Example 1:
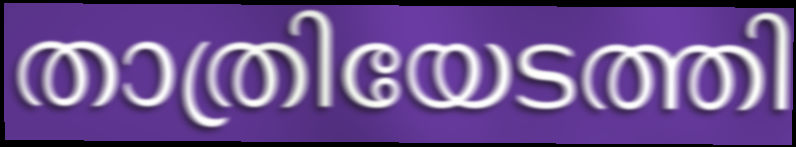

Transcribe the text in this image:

താത്രിയേടത്തി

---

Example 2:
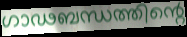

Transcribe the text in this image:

ഗാഢബന്ധത്തിന്റെ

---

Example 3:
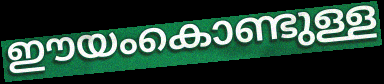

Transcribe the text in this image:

ഈയംകൊണ്ടുള്ള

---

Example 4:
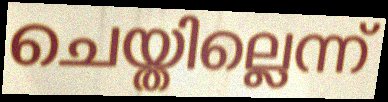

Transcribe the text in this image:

ചെയ്തില്ലെന്ന്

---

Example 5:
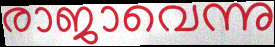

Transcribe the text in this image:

രാജാവെന്നു